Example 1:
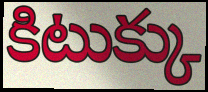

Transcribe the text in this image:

కిటుక్కు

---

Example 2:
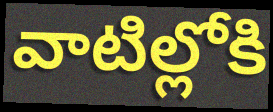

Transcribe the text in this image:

వాటిల్లోకి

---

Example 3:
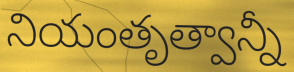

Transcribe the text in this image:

నియంతృత్వాన్నీ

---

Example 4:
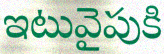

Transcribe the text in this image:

ఇటువైపుకి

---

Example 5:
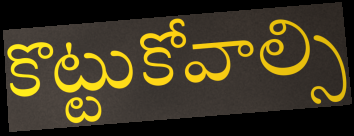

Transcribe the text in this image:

కొట్టుకోవాల్సి